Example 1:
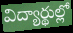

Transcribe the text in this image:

విద్యార్థుల్లో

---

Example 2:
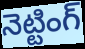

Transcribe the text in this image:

నెట్టింగ్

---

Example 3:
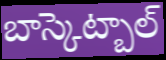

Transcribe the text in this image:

బాస్కెట్బాల్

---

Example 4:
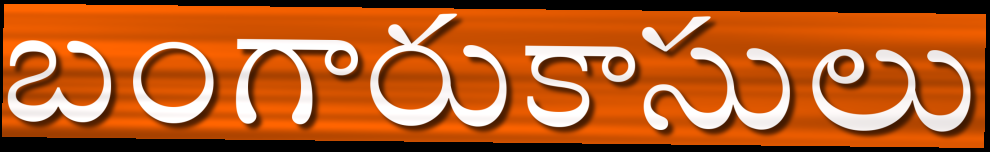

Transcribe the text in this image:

బంగారుకాసులు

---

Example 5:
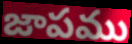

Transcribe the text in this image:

జాపము